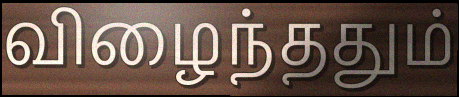
விழைந்ததும்